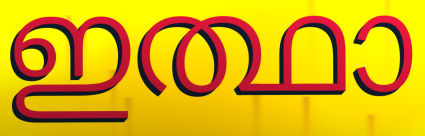
ഇത്ഥാ